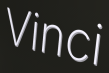
Vinci